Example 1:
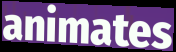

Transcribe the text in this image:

animates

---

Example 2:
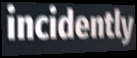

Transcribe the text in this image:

incidently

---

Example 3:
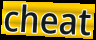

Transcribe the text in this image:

cheat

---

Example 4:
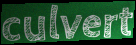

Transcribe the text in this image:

culvert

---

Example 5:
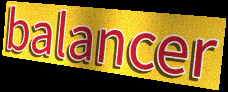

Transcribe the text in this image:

balancer